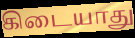
கிடையாது